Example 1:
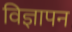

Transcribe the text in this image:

विज्ञापन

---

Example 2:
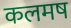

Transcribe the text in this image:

कलमष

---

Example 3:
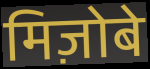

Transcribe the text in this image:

मिज़ोबे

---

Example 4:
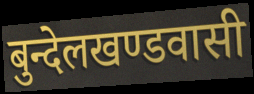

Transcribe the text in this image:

बुन्देलखण्डवासी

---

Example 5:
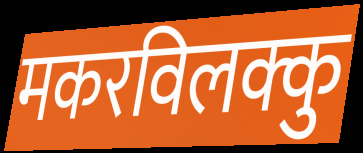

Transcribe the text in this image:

मकरविलक्कु